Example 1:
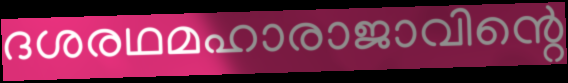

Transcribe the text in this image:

ദശരഥമഹാരാജാവിന്റെ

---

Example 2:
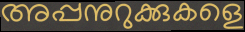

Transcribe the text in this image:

അപ്പനുറുക്കുകളെ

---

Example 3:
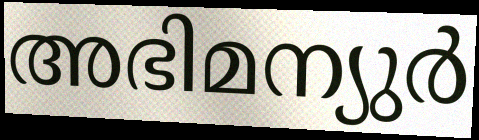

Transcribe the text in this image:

അഭിമന്യുർ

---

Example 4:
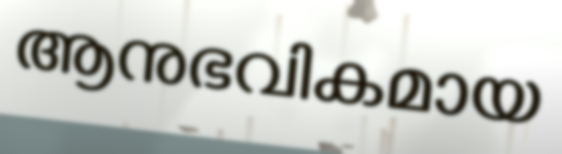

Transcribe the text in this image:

ആനുഭവികമായ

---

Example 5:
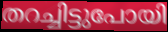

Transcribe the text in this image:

തറച്ചിട്ടുപോയി